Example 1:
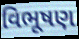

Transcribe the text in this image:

વિભૂષણ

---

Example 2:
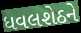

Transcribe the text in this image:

ધવલશેઠને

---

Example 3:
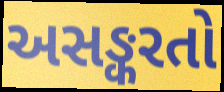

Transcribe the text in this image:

અસઙ્કરતો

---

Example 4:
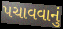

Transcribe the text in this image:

પચાવવાનું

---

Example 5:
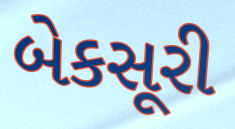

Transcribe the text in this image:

બેકસૂરી